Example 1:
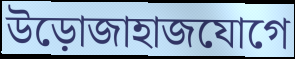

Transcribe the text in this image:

উড়োজাহাজযোগে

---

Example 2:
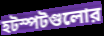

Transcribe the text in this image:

হটস্পটগুলোর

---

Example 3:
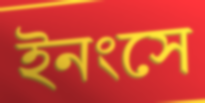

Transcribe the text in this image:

ইনংসে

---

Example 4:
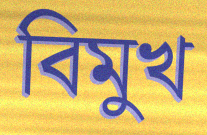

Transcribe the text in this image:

বিমুখ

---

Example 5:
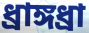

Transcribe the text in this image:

ধ্রাঙ্গধ্রা